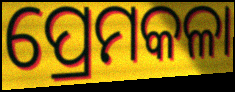
ପ୍ରେମକଳା